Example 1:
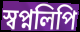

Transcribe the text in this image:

স্বপ্নলিপি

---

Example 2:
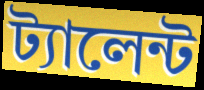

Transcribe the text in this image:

ট্যালেন্ট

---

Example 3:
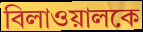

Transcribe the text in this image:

বিলাওয়ালকে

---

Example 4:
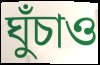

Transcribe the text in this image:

ঘুঁচাও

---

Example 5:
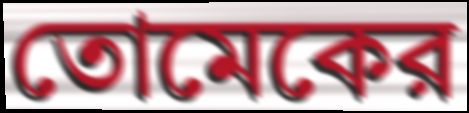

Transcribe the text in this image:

তোমেকের